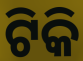
ଟିକି